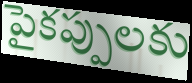
పైకప్పులకు